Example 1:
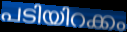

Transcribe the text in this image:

പടിയിറക്കം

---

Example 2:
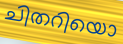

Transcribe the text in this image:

ചിതറിയൊ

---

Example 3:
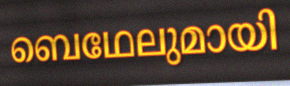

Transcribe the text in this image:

ബെഥേലുമായി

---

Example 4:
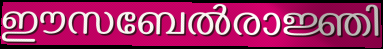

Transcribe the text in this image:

ഈസബേൽരാജ്ഞി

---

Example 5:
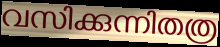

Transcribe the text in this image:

വസിക്കുന്നിതത്ര